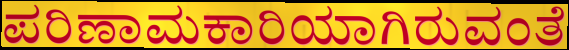
ಪರಿಣಾಮಕಾರಿಯಾಗಿರುವಂತೆ